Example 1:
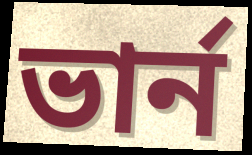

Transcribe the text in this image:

ভার্ন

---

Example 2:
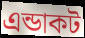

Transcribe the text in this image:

এন্ডাকট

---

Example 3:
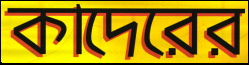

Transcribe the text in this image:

কাদেরের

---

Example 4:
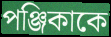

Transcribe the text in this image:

পঞ্জিকাকে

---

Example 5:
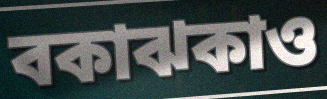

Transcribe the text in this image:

বকাঝকাও